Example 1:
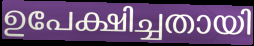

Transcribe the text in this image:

ഉപേക്ഷിച്ചതായി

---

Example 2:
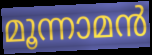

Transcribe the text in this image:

മൂന്നാമൻ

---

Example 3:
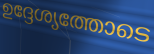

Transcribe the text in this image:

ഉദ്ദേശ്യത്തോടെ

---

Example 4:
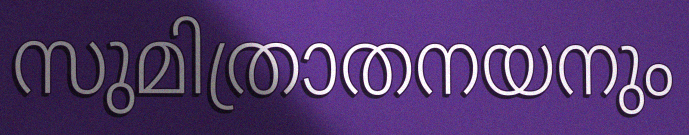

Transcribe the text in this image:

സുമിത്രാതനയനും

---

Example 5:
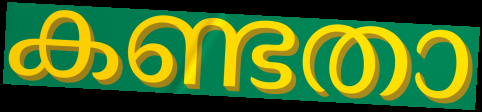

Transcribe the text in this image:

കണ്ടതാ